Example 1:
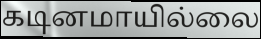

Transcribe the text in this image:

கடினமாயில்லை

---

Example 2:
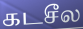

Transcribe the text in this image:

கடசீல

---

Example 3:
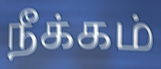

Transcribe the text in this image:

நீக்கம்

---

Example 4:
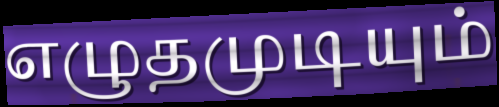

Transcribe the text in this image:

எழுதமுடியும்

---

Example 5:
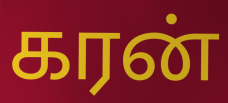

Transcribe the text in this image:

கரன்